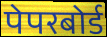
पेपरबोर्ड